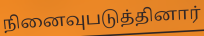
நினைவுபடுத்தினார்